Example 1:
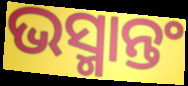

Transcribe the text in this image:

ଭସ୍ମାନ୍ତଂ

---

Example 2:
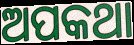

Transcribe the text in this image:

ଅପକଥା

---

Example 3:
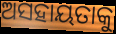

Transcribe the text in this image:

ଅସହାୟତାକୁ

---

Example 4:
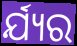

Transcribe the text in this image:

ର୍ଯ୍ୟର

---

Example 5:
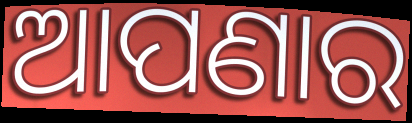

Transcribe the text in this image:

ଆପଣାର